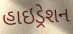
હાઇડ્રેશન